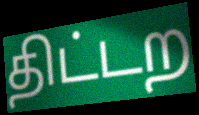
திட்டற